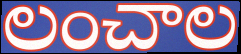
లంచాల